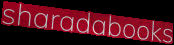
sharadabooks